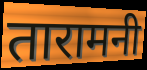
तारामनी